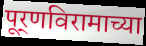
पूर्णविरामाच्या